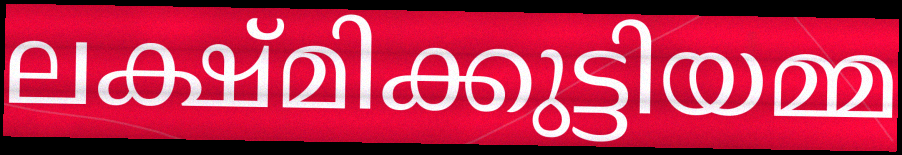
ലക്ഷ്മിക്കുട്ടിയമ്മ